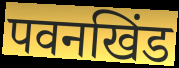
पवनखिंड